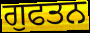
ਗੁਫਤਨ